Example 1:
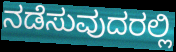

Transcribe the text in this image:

ನಡೆಸುವುದರಲ್ಲಿ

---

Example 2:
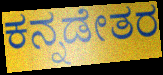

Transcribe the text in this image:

ಕನ್ನಡೇತರ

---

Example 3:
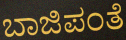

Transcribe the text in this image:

ಬಾಜಿಪಂತೆ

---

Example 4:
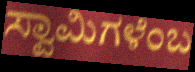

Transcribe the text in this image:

ಸ್ವಾಮಿಗಳೆಂಬ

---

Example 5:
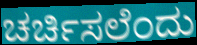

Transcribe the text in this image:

ಚರ್ಚಿಸಲೆಂದು